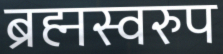
ब्रह्मस्वरुप